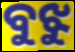
ବୁଝୁ